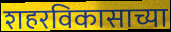
शहरविकासाच्या